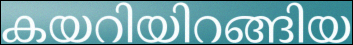
കയറിയിറങ്ങിയ